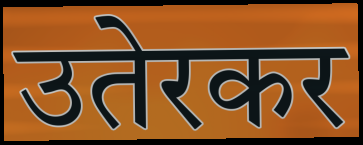
उतेरकर